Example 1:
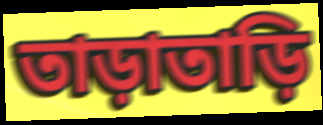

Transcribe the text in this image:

তাড়াতাড়ি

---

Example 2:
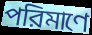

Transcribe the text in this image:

পরিমাণে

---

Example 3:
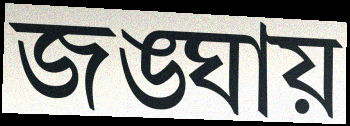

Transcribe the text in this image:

জঙ্ঘায়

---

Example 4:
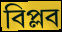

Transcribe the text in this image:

বিপ্লব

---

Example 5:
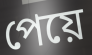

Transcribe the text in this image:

পেয়ে